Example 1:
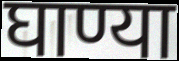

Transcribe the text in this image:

घाण्या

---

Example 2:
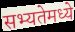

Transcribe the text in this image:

सभ्यतेमध्ये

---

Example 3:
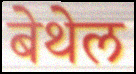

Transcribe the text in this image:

बेथेल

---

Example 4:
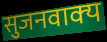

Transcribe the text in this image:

सुजनवाक्य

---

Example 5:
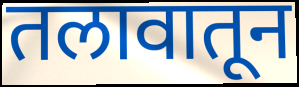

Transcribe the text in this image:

तलावातून